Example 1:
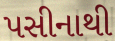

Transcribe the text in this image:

પસીનાથી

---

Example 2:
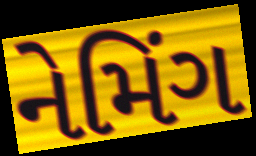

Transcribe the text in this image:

નેમિંગ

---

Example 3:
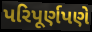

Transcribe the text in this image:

પરિપૂર્ણપણે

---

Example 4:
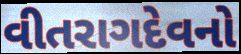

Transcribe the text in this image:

વીતરાગદેવનો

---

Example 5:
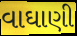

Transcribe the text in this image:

વાઘાણી